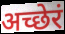
अच्छेरं